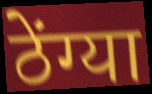
ठेंग्या